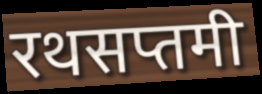
रथसप्तमी